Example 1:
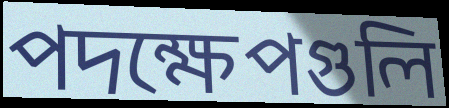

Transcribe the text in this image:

পদক্ষেপগুলি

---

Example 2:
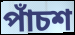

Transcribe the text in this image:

পাঁচশ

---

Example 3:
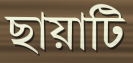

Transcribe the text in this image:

ছায়াটি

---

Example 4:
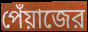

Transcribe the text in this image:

পেঁয়াজের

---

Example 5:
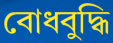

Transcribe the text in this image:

বোধবুদ্ধি